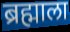
ब्रह्माला